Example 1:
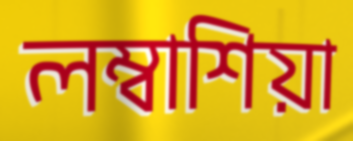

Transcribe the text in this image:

লম্বাশিয়া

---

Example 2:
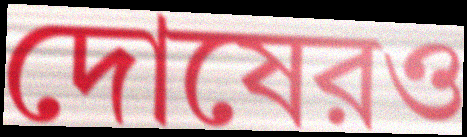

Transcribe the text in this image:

দোষেরও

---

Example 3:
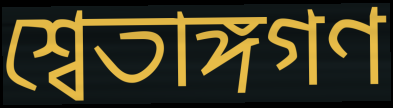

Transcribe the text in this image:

শ্বেতাঙ্গগণ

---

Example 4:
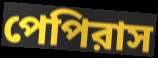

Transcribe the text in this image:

পেপিরাস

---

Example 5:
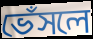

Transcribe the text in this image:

ভেঁসলে